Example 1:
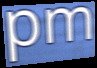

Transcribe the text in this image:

pm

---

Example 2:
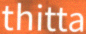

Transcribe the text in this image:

thitta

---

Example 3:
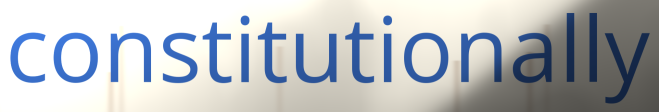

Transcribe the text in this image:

constitutionally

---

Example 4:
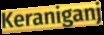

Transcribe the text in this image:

Keraniganj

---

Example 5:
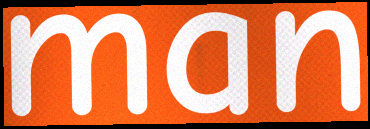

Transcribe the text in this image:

man